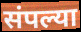
संपल्या